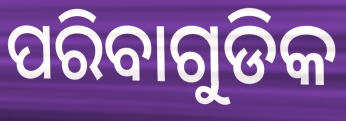
ପରିବାଗୁଡିକ